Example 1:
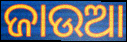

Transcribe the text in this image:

ଜାଉଆ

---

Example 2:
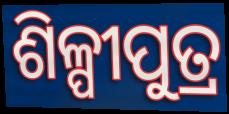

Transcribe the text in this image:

ଶିଳ୍ପୀପୁତ୍ର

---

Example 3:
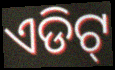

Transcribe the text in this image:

ଏଡିଟ୍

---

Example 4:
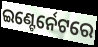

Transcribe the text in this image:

ଇଣ୍ଟେର୍ନେଟରେ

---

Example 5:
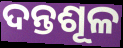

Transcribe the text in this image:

ଦନ୍ତଶୂଳ